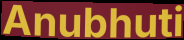
Anubhuti